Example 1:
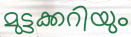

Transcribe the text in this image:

മുട്ടക്കറിയും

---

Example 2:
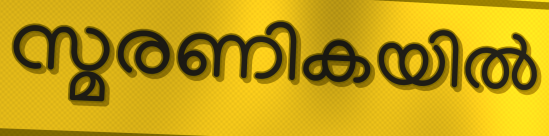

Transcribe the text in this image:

സ്മരണികയിൽ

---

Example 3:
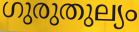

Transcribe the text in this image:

ഗുരുതുല്യം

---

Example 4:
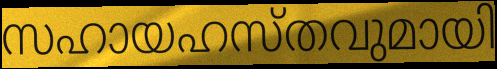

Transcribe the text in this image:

സഹായഹസ്തവുമായി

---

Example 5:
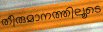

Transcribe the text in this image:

തീരുമാനത്തിലൂടെ